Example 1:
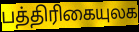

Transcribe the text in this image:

பத்திரிகையுலக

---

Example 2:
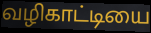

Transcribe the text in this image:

வழிகாட்டியை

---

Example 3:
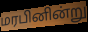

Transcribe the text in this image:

மரபினின்று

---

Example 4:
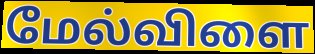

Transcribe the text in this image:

மேல்விளை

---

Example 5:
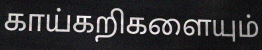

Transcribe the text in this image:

காய்கறிகளையும்